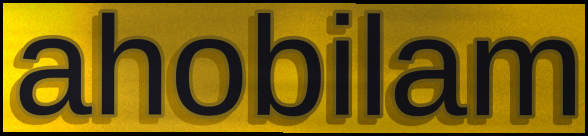
ahobilam